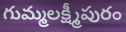
గుమ్మలక్ష్మీపురం